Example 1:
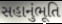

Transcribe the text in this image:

સહાનુંભૂતિ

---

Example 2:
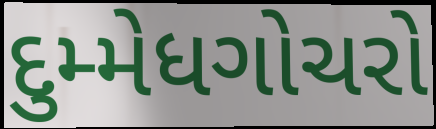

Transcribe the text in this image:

દુમ્મેધગોચરો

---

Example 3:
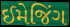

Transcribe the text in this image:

ઈમેજિંગ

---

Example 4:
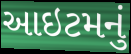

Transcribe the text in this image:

આઇટમનું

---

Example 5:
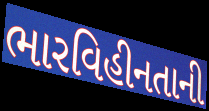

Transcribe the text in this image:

ભારવિહીનતાની